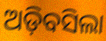
ଅଡ଼ିବସିଲା